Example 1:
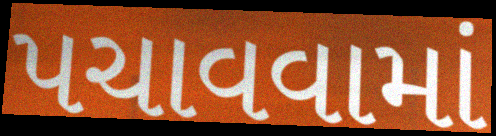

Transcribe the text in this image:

પચાવવામાં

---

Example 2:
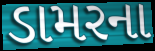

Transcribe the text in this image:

ડામરના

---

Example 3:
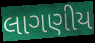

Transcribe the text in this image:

લાગણીય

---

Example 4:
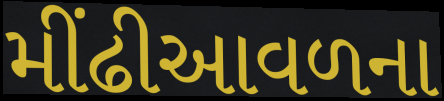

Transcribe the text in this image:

મીંઢીઆવળના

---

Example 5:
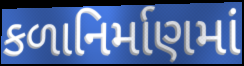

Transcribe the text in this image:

કળાનિર્માણમાં